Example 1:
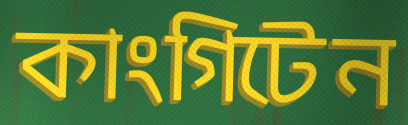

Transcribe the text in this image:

কাংগিটেন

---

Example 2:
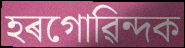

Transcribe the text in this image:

হৰগোৱিন্দক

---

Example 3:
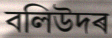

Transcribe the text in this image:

বলিউদৰ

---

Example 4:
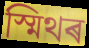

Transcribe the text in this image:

স্মিথৰ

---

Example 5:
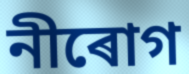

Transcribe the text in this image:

নীৰোগ